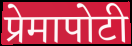
प्रेमापोटी